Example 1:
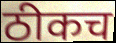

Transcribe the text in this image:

ठीकच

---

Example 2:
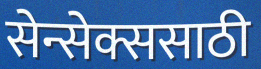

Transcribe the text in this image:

सेन्सेक्ससाठी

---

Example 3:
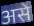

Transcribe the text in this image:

असे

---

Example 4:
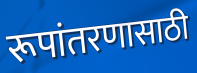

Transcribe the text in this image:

रूपांतरणासाठी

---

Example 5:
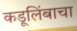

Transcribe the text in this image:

कडूलिंबाचा